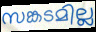
സങ്കടമില്ല